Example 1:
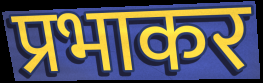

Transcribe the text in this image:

प्रभाकर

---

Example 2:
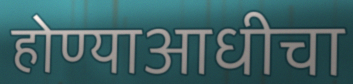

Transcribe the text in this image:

होण्याआधीचा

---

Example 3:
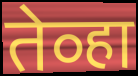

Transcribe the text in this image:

तेव्हा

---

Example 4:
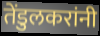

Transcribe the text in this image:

तेंडुलकरांनी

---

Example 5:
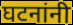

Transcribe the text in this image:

घटनांनी